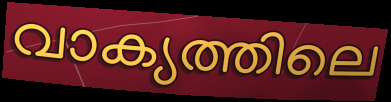
വാക്യത്തിലെ